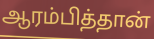
ஆரம்பித்தான்